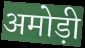
अमोड़ी